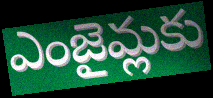
ఎంజైమ్లకు